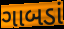
ગાબડાં